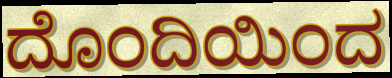
ದೊಂದಿಯಿಂದ